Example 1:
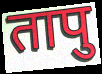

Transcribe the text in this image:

तापु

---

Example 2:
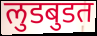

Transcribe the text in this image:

लुडबुडत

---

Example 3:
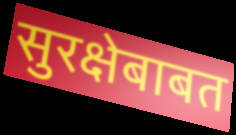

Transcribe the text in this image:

सुरक्षेबाबत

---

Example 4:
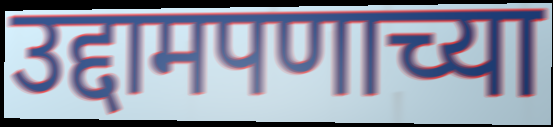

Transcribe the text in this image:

उद्दामपणाच्या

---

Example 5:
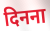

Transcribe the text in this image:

दिनना